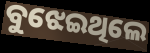
ବୁଝେଇଥିଲେ